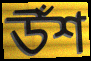
উঁশ